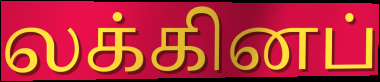
லக்கினப்